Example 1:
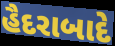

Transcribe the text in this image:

હૈદરાબાદે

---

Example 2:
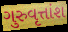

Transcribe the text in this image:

ગુરુવૃત્તાંશ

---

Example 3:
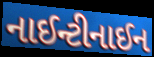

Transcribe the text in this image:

નાઈન્ટીનાઈન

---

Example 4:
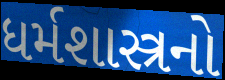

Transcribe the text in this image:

ધર્મશાસ્ત્રનો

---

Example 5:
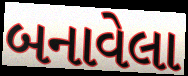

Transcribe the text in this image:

બનાવેલા